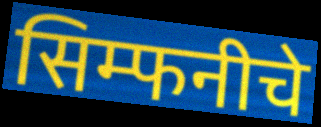
सिम्फनीचे